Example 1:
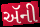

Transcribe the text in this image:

ઍની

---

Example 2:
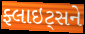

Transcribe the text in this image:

ફ્લાઇટ્સને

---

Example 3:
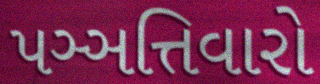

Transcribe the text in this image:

પઞ્ઞત્તિવારો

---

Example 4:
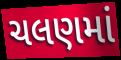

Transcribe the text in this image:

ચલણમાં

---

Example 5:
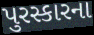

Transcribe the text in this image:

પુરસ્કારના